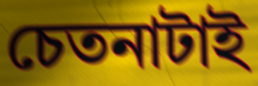
চেতনাটাই